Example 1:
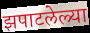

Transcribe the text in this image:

झपाटलेल्या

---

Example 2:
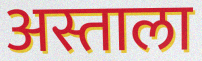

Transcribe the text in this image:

अस्ताला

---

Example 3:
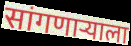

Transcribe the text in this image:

सांगणार्‍याला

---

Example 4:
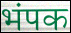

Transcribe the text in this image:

भंपक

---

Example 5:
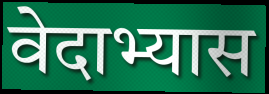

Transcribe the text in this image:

वेदाभ्यास